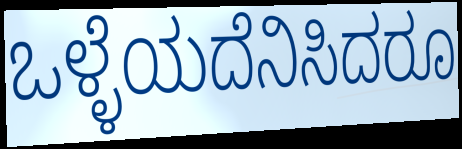
ಒಳ್ಳೆಯದೆನಿಸಿದರೂ